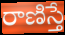
రాణిస్తే